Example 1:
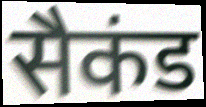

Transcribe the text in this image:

सैकंड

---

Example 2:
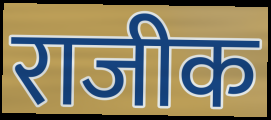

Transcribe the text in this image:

राजीक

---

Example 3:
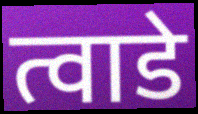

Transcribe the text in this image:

त्वाडे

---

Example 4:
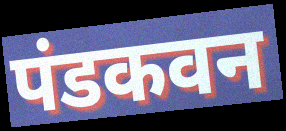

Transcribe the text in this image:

पंडकवन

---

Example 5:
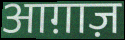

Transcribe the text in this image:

आग़ाज़